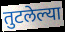
तुटलेल्या